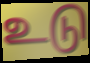
உடு